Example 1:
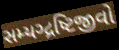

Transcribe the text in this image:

સમ્યગ્દ્રષ્ટિજીવો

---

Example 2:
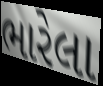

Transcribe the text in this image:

ભારેલા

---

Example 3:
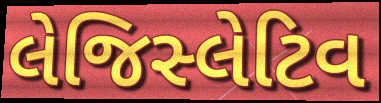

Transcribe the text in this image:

લેજિસ્લેટિવ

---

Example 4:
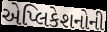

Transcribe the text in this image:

એપ્લિકેશનોની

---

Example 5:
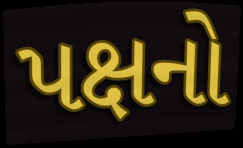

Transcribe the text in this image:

પક્ષનો